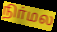
நிர்மல